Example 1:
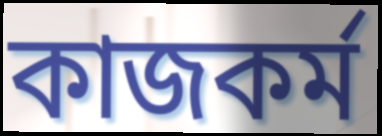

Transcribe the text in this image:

কাজকর্ম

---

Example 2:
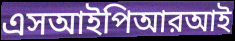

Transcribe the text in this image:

এসআইপিআরআই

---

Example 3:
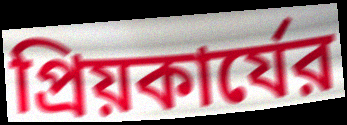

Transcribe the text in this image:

প্রিয়কার্যের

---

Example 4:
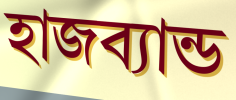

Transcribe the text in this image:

হাজব্যান্ড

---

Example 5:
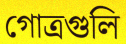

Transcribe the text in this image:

গোত্রগুলি